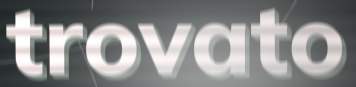
trovato